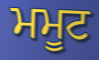
ਮਮੂਟ